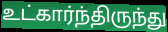
உட்கார்ந்திருந்து